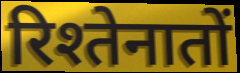
रिश्तेनातों